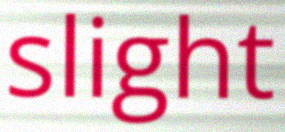
slight